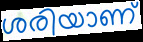
ശരിയാണ്